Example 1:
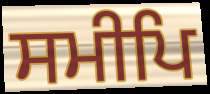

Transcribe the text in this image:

ਸਮੀਪਿ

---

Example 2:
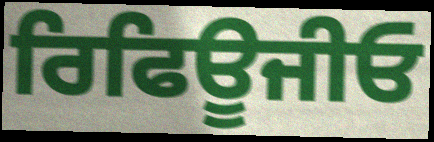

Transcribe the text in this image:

ਰਿਫਿਊਜੀਓ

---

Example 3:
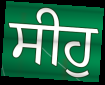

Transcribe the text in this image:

ਸੀਹੁ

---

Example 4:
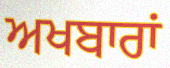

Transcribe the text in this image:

ਅਖਬਾਰਾਂ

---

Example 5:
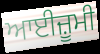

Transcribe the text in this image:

ਆਈਜ਼ੂਮੀ